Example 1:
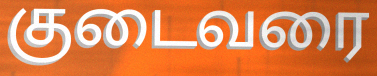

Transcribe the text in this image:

குடைவரை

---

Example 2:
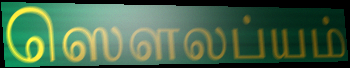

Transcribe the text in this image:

ஸௌலப்யம்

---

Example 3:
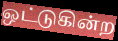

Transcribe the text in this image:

ஒட்டுகின்ற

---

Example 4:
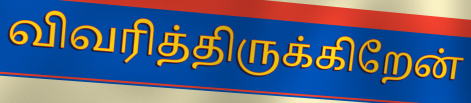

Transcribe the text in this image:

விவரித்திருக்கிறேன்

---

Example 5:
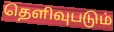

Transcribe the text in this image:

தெளிவுபடும்